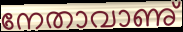
നേതാവാണു്